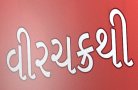
વીરચક્રથી